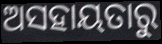
ଅସହାୟତାରୁ